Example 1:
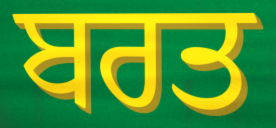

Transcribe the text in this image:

ਬਰਤ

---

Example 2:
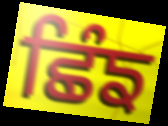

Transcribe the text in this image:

ਛਿੰਙ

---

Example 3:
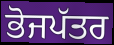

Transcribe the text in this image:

ਭੋਜਪੱਤਰ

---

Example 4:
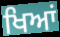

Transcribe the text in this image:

ਖਿਆਂ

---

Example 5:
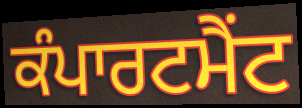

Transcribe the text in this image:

ਕੰਪਾਰਟਮੈਂਟ